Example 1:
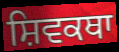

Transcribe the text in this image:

ਸ਼ਿਵਕਥਾ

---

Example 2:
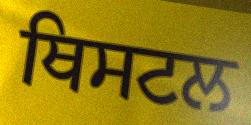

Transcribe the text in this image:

ਥਿਸਟਲ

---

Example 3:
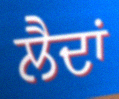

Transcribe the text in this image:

ਲੈਦਾਂ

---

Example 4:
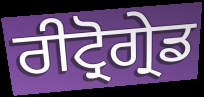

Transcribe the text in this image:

ਰੀਟ੍ਰੋਗ੍ਰੇਡ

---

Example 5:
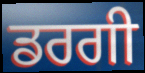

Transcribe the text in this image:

ਡਰਗੀ